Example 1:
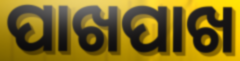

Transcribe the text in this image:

ପାଖପାଖ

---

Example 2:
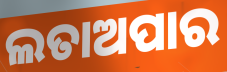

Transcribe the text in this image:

ଲତାଅପାର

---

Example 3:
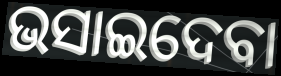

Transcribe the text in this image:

ଭସାଇଦେବା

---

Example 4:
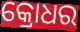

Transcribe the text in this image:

କ୍ରୋଧର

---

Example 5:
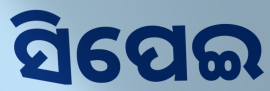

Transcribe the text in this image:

ସିପେଇ